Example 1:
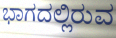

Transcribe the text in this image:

ಭಾಗದಲ್ಲಿರುವ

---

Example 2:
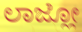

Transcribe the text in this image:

ಲಾಜ್ಲೋ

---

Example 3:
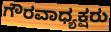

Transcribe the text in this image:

ಗೌರವಾಧ್ಯಕ್ಷರು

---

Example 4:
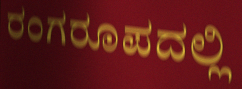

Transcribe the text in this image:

ರಂಗರೂಪದಲ್ಲಿ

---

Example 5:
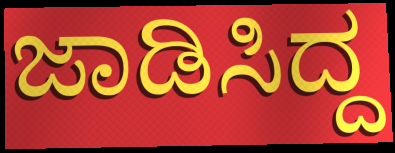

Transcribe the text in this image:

ಜಾಡಿಸಿದ್ದ